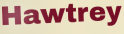
Hawtrey